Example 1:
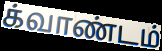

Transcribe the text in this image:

க்வாண்டம்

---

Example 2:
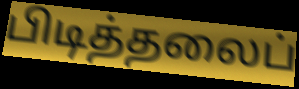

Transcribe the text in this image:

பிடித்தலைப்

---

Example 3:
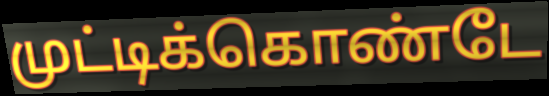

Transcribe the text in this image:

முட்டிக்கொண்டே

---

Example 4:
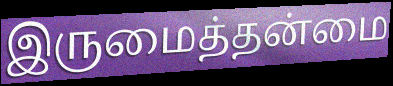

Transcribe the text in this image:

இருமைத்தன்மை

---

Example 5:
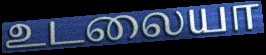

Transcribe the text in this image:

உடலையா